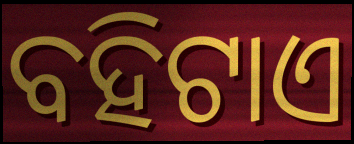
ବହିଟାଏ